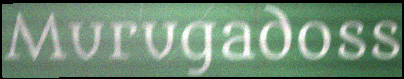
Murugadoss